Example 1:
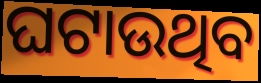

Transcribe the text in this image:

ଘଟାଉଥିବ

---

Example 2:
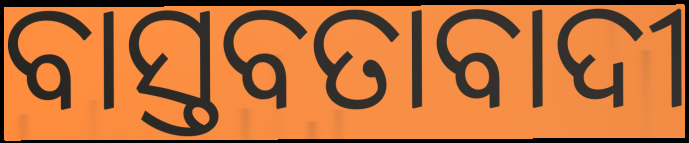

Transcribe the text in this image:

ବାସ୍ତବତାବାଦୀ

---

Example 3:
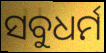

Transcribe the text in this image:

ସବୁଧର୍ମ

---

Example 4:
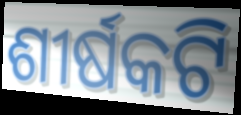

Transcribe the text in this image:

ଶୀର୍ଷକଟି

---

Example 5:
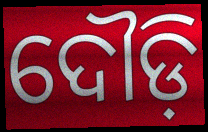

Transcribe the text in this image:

ଦୌଡ଼ି